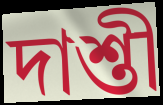
দাশ্তী